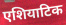
एशियाटिक